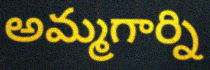
అమ్మగార్ని